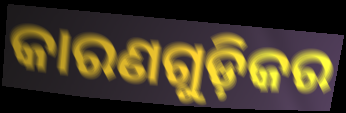
କାରଣଗୁଡ଼ିକର